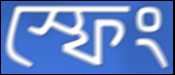
স্ফেং